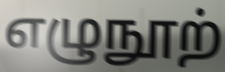
எழுநூற்